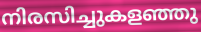
നിരസിച്ചുകളഞ്ഞു